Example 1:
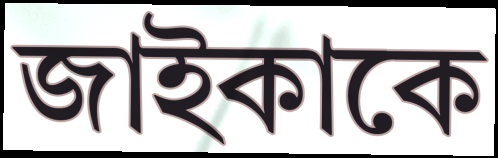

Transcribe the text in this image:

জাইকাকে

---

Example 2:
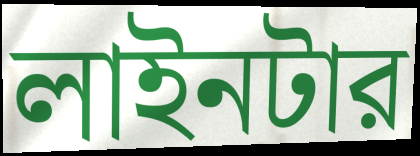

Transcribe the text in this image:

লাইনটার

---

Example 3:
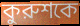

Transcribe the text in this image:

কুরুশকে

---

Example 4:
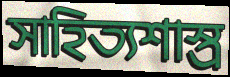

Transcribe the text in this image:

সাহিত্যশাস্ত্র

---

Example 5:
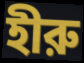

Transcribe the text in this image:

হীরু